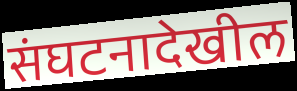
संघटनादेखील